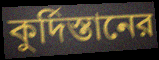
কুর্দিস্তানের